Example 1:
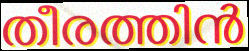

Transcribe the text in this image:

തീരത്തിൻ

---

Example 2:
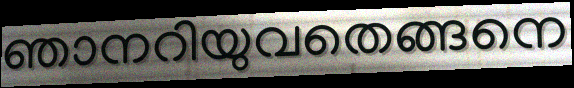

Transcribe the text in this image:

ഞാനറിയുവതെങ്ങനെ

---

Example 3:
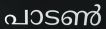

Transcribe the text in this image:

പാടൺ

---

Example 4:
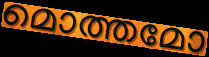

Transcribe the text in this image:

മൊത്തമോ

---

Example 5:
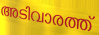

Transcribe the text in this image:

അടിവാരത്ത്